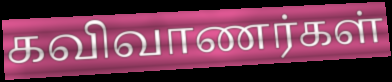
கவிவாணர்கள்